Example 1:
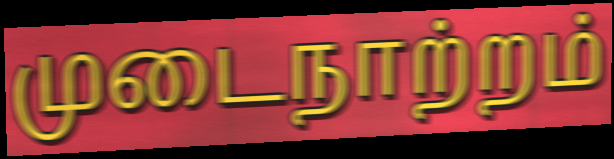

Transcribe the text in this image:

முடைநாற்றம்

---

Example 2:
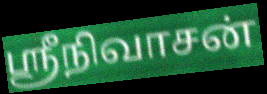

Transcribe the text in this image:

ஸ்ரீநிவாசன்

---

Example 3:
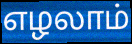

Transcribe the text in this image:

எழலாம்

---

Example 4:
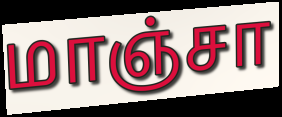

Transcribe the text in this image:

மாஞ்சா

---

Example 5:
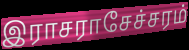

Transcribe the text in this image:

இராசராசேச்சரம்